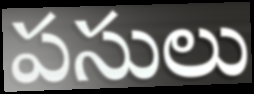
పసులు